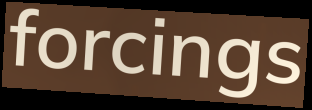
forcings